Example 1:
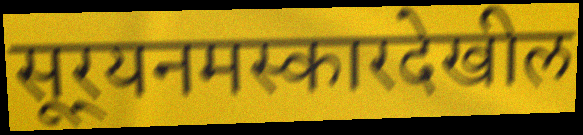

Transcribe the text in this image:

सूर्यनमस्कारदेखील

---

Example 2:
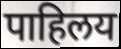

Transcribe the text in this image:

पाहिलय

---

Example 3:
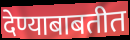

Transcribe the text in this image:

देण्याबाबतीत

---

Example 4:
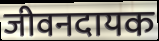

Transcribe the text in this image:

जीवनदायक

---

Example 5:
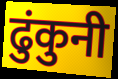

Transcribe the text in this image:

ढुंकुनी